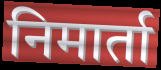
निमार्ता